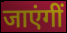
जाएंगीं